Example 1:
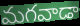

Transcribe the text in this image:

మగవాడా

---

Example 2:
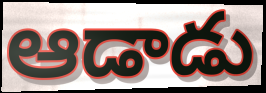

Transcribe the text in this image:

ఆడాడు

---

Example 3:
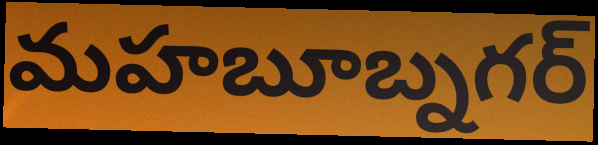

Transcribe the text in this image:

మహబూబ్నగర్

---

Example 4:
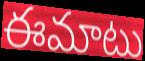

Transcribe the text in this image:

ఈమాటు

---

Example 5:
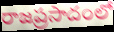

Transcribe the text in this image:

రాజప్రసాదంలో